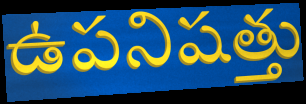
ఉపనిషత్తు